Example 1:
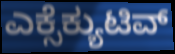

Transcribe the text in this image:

ಎಕ್ಸೆಕ್ಯುಟಿವ್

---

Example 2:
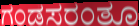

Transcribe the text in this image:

ಗಂಡಸರಂತೂ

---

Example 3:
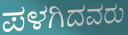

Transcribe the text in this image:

ಪಳಗಿದವರು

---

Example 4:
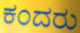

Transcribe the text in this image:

ಕಂದರು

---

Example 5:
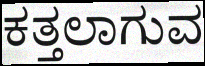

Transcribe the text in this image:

ಕತ್ತಲಾಗುವ